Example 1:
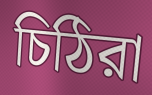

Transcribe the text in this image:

চিঠিরা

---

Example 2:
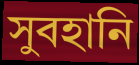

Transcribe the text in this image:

সুবহানি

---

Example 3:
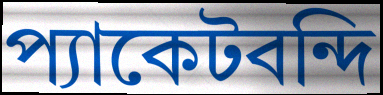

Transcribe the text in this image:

প্যাকেটবন্দি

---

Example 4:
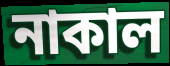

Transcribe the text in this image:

নাকাল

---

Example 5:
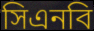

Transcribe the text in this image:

সিএনবি